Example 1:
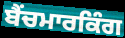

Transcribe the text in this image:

ਬੈਂਚਮਾਰਕਿੰਗ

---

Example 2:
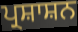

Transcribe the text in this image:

ਪ੍ਰਸ਼ਾਸ਼ਨ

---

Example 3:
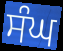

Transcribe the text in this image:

ਸੰਘ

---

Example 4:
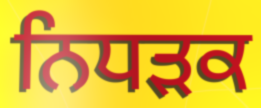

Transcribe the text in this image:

ਨਿਧਡ਼ਕ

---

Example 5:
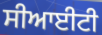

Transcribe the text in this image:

ਸੀਆਈਟੀ